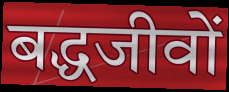
बद्धजीवों